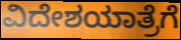
ವಿದೇಶಯಾತ್ರೆಗೆ